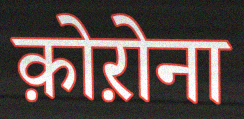
क़ोऱोना